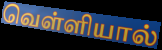
வெள்ளியால்